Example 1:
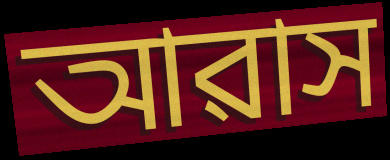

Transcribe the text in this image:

আৱাস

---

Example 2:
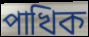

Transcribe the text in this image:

পাখিক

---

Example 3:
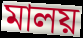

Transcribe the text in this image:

মালয়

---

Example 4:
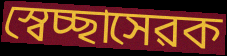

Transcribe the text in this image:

স্বেচ্ছাসেৱক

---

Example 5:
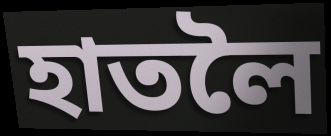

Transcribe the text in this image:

হাতলৈ